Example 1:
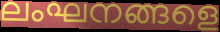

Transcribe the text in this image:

ലംഘനങ്ങളെ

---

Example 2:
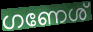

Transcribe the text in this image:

ഗണേശ്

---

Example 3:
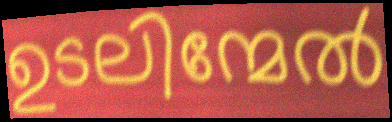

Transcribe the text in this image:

ഉടലിന്മേൽ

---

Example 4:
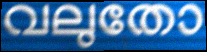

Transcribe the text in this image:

വലുതോ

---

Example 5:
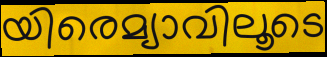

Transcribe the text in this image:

യിരെമ്യാവിലൂടെ